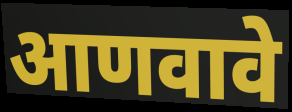
आणवावे